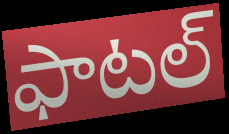
ఫాటల్